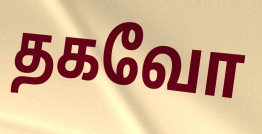
தகவோ